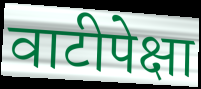
वाटीपेक्षा